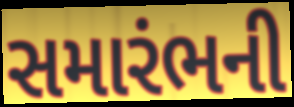
સમારંભની